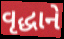
વૃદ્ધાને